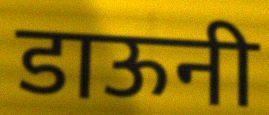
डाऊनी